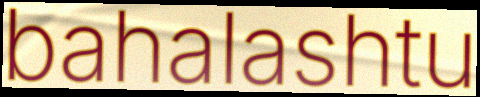
bahalashtu